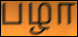
பழா